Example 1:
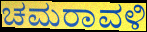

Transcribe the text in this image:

ಚಮರಾವಳಿ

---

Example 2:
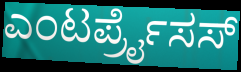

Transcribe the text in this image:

ಎಂಟರ್ಪ್ರೈಸಸ್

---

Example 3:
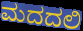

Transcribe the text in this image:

ಮದದಲಿ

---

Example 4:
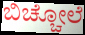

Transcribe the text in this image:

ಬಿಚ್ಚೋಲೆ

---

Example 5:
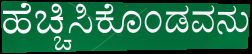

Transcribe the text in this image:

ಹೆಚ್ಚಿಸಿಕೊಂಡವನು